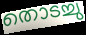
തൊടച്ചു